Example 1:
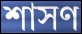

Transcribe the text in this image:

শাসণ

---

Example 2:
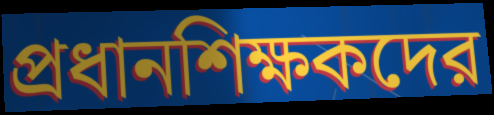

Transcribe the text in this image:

প্রধানশিক্ষকদের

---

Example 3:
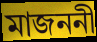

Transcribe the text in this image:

মাজননী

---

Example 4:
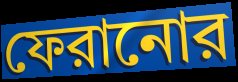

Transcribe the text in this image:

ফেরানোর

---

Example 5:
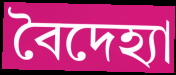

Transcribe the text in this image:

বৈদেহ্যা